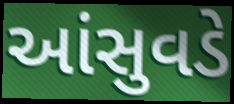
આંસુવડે